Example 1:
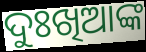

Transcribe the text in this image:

ଦୁଃଖିଆଙ୍କ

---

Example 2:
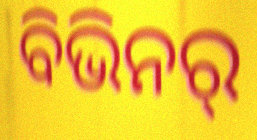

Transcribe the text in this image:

ବିଭିନର୍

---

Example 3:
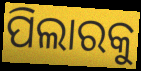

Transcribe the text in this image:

ପିଲାରକୁ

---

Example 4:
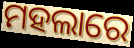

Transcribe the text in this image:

ମହଲାରେ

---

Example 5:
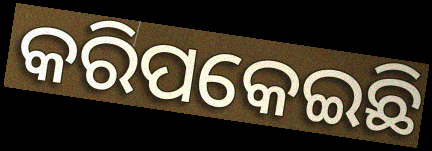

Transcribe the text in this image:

କରିପକେଇଛି